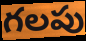
గలపు